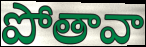
పోతావా